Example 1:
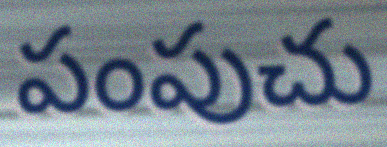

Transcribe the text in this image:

పంపుచు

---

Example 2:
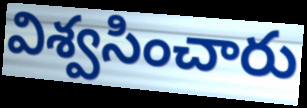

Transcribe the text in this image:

విశ్వసించారు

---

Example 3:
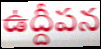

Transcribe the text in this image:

ఉద్దీపన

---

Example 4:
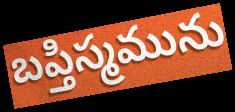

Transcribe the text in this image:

బప్తిస్మమును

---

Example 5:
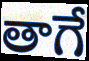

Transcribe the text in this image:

తాగే